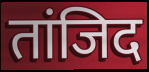
तांजिद